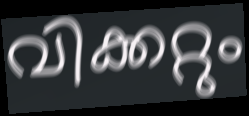
വിക്കറ്റും